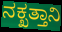
ನಕ್ಖತ್ತಾನಿ